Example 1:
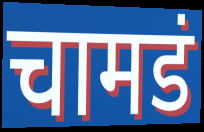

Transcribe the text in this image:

चामडं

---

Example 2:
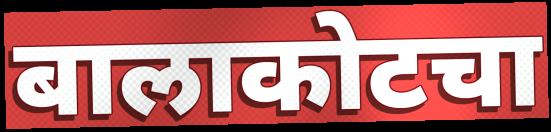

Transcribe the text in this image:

बालाकोटचा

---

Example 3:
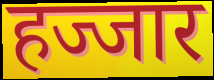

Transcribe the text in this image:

हज्जार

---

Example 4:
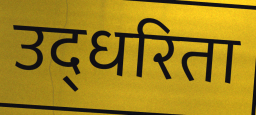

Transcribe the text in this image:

उद्धरिता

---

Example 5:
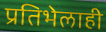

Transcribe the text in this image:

प्रतिभेलाही